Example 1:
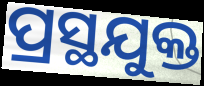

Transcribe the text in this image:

ପ୍ରସ୍ଥଯୁକ୍ତ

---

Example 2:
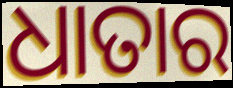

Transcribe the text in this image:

ଧାତାର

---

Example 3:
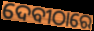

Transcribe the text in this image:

ଦେବୀଠାରେ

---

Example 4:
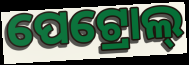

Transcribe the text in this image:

ପେଟ୍ରୋଲ୍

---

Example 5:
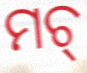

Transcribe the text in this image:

ମଚ୍